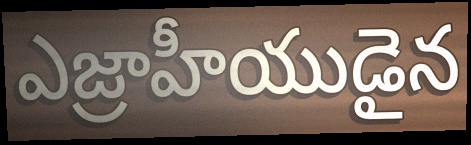
ఎజ్రాహీయుడైన